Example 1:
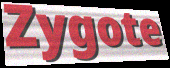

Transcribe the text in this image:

Zygote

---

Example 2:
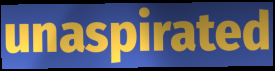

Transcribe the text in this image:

unaspirated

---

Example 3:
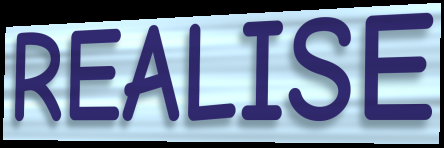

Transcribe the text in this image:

REALISE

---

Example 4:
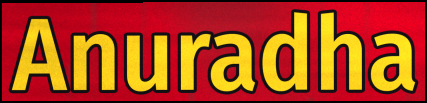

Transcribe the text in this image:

Anuradha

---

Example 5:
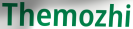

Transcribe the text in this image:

Themozhi